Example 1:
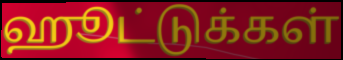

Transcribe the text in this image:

ஹூட்டுக்கள்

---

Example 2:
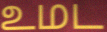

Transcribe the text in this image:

உமட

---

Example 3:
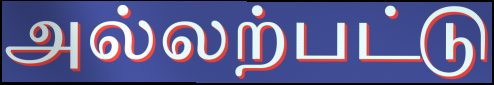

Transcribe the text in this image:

அல்லற்பட்டு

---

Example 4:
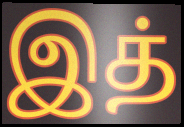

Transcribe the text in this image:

இத்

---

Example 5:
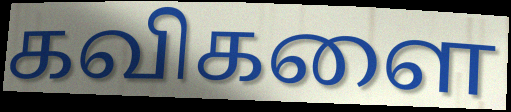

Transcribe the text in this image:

கவிகளை